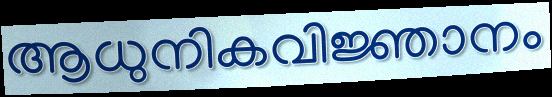
ആധുനികവിജ്ഞാനം